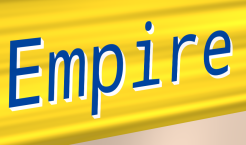
Empire